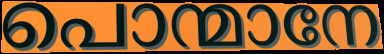
പൊന്മാനേ